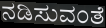
ನಡಿಸುವಂತೆ